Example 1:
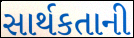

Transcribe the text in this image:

સાર્થકતાની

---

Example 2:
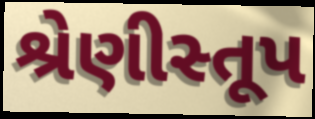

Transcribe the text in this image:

શ્રેણીસ્તૂપ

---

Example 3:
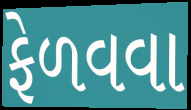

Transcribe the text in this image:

ફેળવવા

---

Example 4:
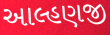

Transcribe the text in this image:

આલ્હણજી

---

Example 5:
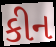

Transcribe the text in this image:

કીન